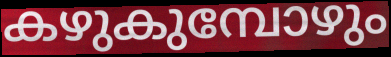
കഴുകുമ്പോഴും